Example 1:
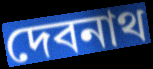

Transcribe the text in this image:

দেবনাথ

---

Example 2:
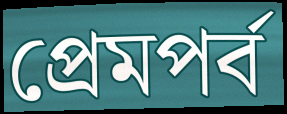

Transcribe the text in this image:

প্রেমপর্ব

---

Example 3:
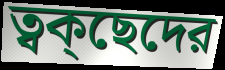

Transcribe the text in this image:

ত্বক্ছেদের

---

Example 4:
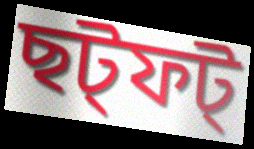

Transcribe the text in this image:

ছট্‌ফট্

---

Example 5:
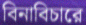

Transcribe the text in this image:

বিনাবিচারে